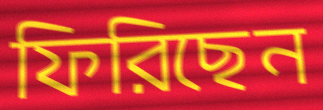
ফিরিছেন